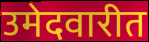
उमेदवारीत